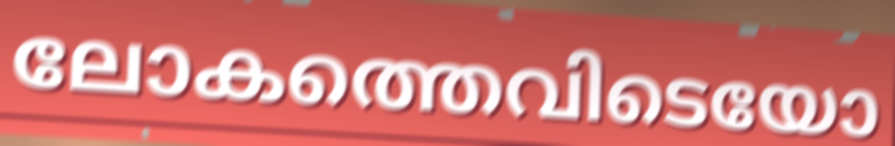
ലോകത്തെവിടെയോ